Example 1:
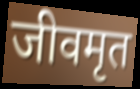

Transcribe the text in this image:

जीवमृत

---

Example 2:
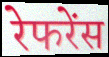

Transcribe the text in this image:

रेफरेंस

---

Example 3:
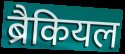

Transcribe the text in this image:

ब्रैकियल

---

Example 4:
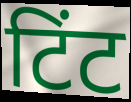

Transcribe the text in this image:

टिंट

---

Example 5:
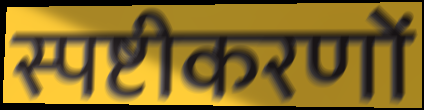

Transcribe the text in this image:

स्पष्टीकरणों